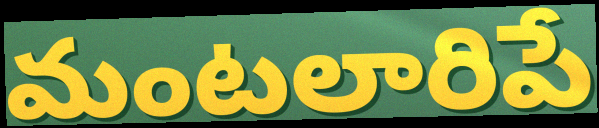
మంటలారిపే